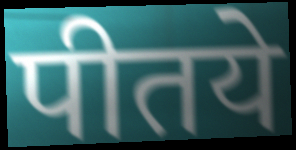
पीतये